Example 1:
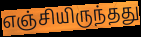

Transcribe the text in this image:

எஞ்சியிருந்தது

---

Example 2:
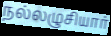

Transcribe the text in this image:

நல்லழுசியார்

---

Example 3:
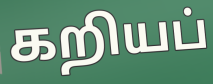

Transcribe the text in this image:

கறியப்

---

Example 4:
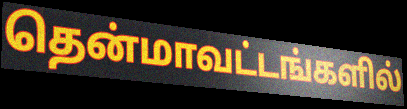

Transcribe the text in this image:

தென்மாவட்டங்களில்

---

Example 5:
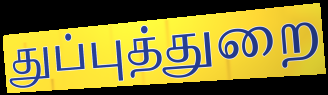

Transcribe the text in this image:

துப்புத்துறை